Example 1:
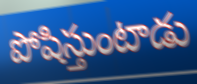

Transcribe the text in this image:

పోషిస్తుంటాడు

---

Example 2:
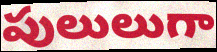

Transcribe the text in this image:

పులులుగా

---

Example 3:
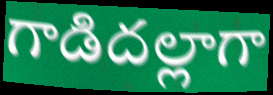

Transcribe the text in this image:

గాడిదల్లాగా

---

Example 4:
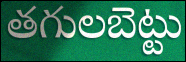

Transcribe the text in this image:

తగులబెట్టు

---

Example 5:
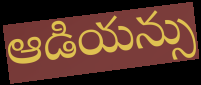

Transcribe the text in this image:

ఆడియన్సు